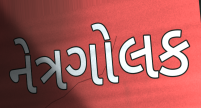
નેત્રગોલક